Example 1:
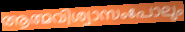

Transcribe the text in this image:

ആത്മവിശ്വാസംപോലും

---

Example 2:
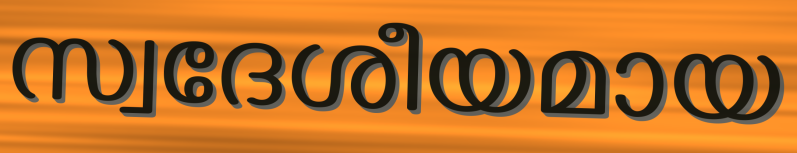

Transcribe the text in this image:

സ്വദേശീയമായ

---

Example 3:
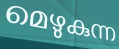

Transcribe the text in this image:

മെഴുകുന്ന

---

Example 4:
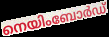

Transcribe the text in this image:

നെയിംബോർഡ്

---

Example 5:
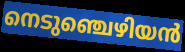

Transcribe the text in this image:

നെടുഞ്ചെഴിയൻ